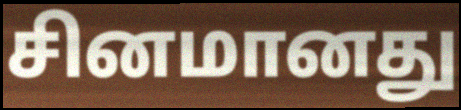
சினமானது